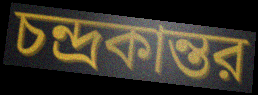
চন্দ্রকান্তর